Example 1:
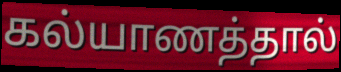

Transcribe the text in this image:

கல்யாணத்தால்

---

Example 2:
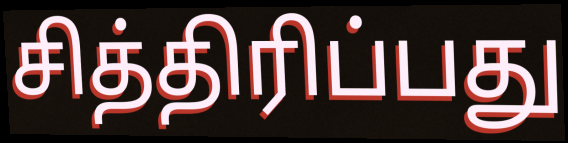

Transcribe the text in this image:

சித்திரிப்பது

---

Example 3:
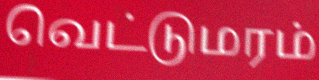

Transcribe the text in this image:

வெட்டுமரம்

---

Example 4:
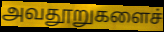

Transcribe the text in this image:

அவதூறுகளைச்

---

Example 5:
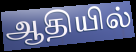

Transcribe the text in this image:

ஆதியில்